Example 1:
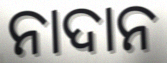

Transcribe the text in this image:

ନାଦାନ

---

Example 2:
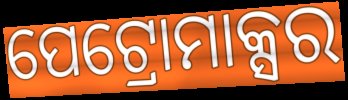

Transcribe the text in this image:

ପେଟ୍ରୋମାକ୍ସର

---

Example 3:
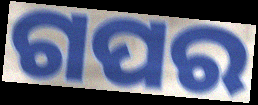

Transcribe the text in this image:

ଗପର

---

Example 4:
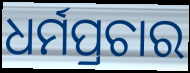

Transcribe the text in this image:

ଧର୍ମପ୍ରଚାର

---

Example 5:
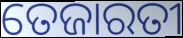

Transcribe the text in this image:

ତେଜାରତୀ